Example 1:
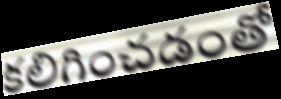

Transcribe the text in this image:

కలిగించడంతో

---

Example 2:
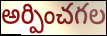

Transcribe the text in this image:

అర్పించగల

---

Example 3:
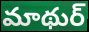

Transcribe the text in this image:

మాథుర్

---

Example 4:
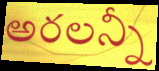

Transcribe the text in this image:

అరలన్నీ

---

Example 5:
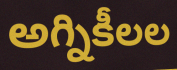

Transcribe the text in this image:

అగ్నికీలల